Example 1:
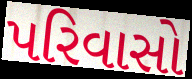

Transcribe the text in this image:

પરિવાસો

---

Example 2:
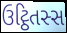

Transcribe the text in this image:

ઉટ્ઠિતસ્સ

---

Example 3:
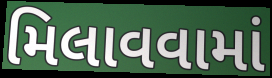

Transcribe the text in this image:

મિલાવવામાં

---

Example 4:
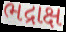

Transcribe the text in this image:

ભદ્રાક્ષ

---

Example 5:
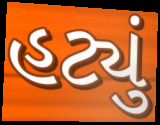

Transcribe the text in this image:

હટ્યું